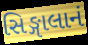
સિઙ્ગાલાનં